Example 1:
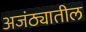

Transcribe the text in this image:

अजंठ्यातील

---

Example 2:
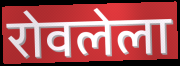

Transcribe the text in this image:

रोवलेला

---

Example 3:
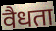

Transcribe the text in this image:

वैधता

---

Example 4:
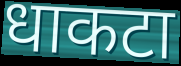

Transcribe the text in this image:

धाकटा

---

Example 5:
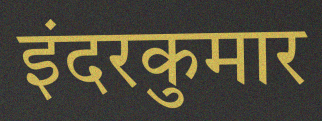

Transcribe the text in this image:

इंदरकुमार